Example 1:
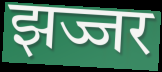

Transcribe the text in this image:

झज्जर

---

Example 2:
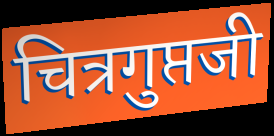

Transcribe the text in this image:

चित्रगुप्तजी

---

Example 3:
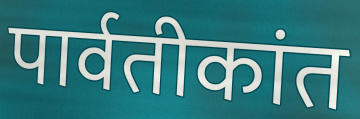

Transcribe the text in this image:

पार्वतीकांत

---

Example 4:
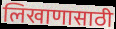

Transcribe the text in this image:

लिखाणासाठी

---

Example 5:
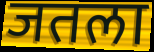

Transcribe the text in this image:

जतला